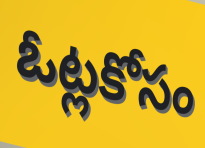
ఓట్లకోసం